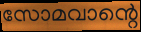
സോമവാന്റെ